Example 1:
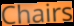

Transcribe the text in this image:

Chairs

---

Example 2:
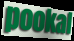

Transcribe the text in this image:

pookal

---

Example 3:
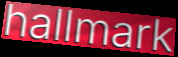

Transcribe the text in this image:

hallmark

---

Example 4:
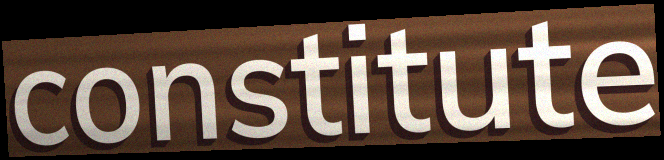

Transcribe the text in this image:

constitute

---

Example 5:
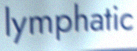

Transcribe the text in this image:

lymphatic